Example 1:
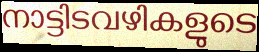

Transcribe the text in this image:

നാട്ടിടവഴികളുടെ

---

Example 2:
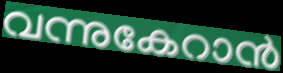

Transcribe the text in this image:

വന്നുകേറാൻ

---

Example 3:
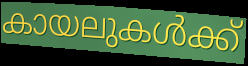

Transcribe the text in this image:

കായലുകൾക്ക്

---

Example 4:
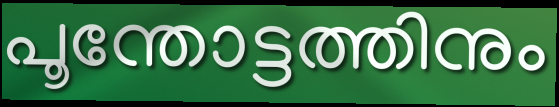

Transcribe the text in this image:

പൂന്തോട്ടത്തിനും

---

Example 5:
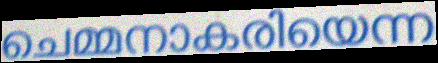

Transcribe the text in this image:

ചെമ്മനാകരിയെന്ന